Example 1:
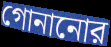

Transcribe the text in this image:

গোনানোর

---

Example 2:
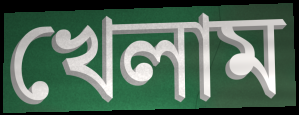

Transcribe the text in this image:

খেলাম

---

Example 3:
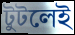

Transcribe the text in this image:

টুটলেই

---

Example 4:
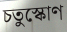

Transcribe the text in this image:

চতুস্কোণ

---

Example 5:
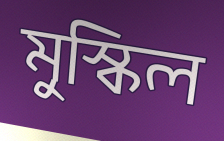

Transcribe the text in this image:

মুস্কিল